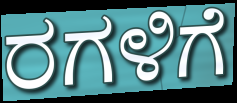
ರಗಳಿಗೆ